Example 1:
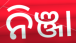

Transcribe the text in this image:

ନିଞ୍ଜା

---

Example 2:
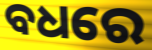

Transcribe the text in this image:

ବଧରେ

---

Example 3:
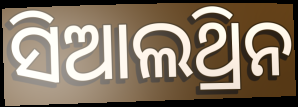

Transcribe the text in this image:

ସିଆଲଥ୍ରିନ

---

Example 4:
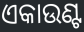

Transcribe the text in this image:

ଏକାଉଣ୍ଟ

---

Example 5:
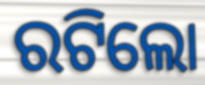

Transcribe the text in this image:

ରଟିଲୋ